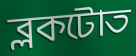
ব্লকটোত